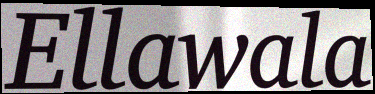
Ellawala